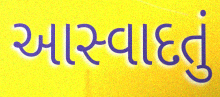
આસ્વાદતું